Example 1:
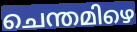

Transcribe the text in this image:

ചെന്തമിഴെ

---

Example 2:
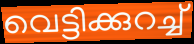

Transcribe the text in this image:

വെട്ടിക്കുറച്ച്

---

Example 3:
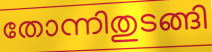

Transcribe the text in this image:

തോന്നിതുടങ്ങി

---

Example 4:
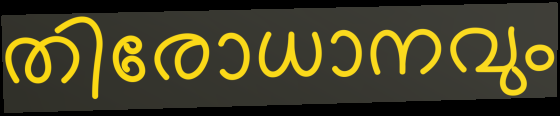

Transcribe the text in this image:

തിരോധാനവും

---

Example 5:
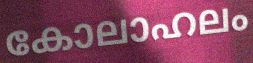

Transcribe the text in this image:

കോലാഹലം